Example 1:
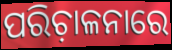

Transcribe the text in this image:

ପରିଚ଼ାଳନାରେ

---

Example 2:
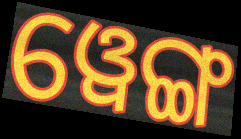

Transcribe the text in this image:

ୱେଙ୍ଗ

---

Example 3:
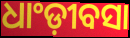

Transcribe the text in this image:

ଧାଂଡ଼ୀବସା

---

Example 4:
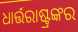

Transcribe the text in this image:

ଧାର୍ତ୍ତରାଷ୍ଟ୍ରଙ୍କର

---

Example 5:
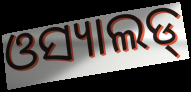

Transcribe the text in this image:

ଓସ୍ୟାଲଡ୍